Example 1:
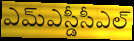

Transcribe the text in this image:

ఎమ్ఎస్డీసీఎల్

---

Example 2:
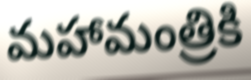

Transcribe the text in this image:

మహామంత్రికి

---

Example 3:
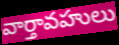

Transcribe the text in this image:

వార్తావహులు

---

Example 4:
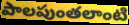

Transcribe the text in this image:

పాలపుంతలాంటి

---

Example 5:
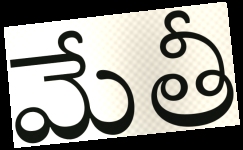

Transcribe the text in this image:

మేతీ